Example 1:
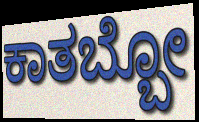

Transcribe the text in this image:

ಕಾತಬ್ಬೋ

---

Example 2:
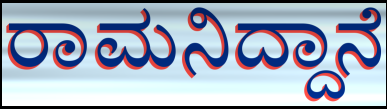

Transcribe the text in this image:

ರಾಮನಿದ್ದಾನೆ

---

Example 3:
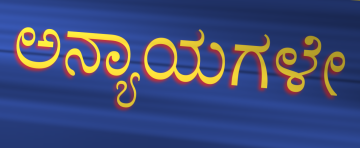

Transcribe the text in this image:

ಅನ್ಯಾಯಗಳೇ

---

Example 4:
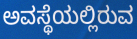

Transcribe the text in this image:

ಅವಸ್ಥೆಯಲ್ಲಿರುವ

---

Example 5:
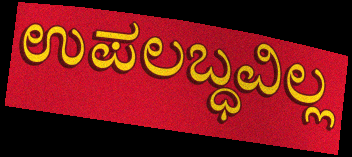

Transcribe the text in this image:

ಉಪಲಬ್ಧವಿಲ್ಲ